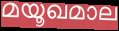
മയൂഖമാല